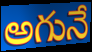
అగునే